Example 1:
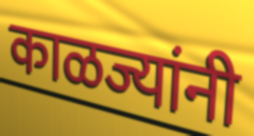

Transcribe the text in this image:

काळज्यांनी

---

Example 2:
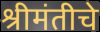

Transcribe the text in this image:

श्रीमंतीचे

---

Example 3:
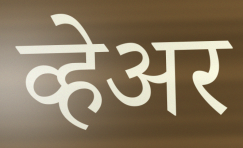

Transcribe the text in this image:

व्हेअर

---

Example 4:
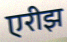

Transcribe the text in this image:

एरीझ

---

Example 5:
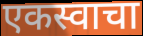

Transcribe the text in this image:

एकस्वाचा